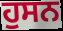
ਹੁਸਨ